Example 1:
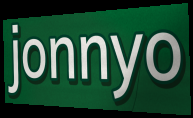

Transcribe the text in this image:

jonnyo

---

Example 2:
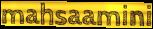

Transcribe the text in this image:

mahsaamini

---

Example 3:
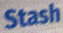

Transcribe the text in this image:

Stash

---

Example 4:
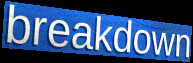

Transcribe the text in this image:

breakdown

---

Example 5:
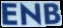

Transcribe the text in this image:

ENB